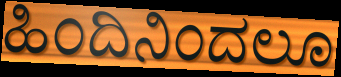
ಹಿಂದಿನಿಂದಲೂ